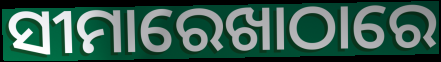
ସୀମାରେଖାଠାରେ